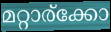
മറ്റാര്ക്കോ